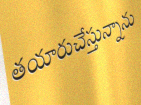
తయారుచేస్తున్నాను